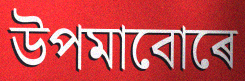
উপমাবোৰে